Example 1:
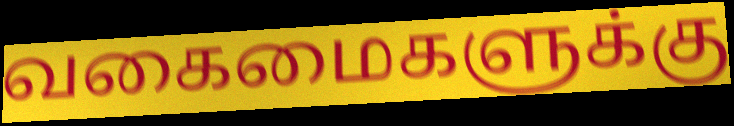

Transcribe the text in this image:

வகைமைகளுக்கு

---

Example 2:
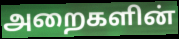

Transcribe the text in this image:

அறைகளின்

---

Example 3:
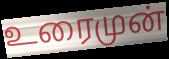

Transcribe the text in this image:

உரைமுன்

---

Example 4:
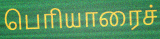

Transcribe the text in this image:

பெரியாரைச்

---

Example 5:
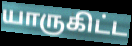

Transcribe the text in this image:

யாருகிட்ட